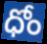
ధోం